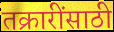
तक्रारींसाठी